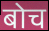
बोच